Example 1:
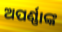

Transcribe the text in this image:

ଅପର୍ଣ୍ଣାଙ୍କ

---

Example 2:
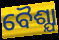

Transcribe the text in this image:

ବୈଶ୍ଯା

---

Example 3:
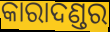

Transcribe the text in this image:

କାରାଦଣ୍ଡର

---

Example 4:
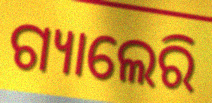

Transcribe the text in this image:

ଗ୍ୟାଲେରି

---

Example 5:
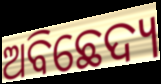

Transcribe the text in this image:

ଅବିଛେଦ୍ୟ